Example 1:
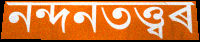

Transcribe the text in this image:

নন্দনতত্ত্বৰ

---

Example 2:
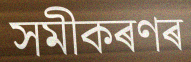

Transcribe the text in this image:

সমীকৰণৰ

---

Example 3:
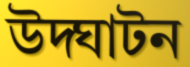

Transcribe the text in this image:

উদ্ঘাটন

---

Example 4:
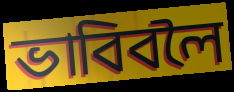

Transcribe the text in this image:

ভাবিবলৈ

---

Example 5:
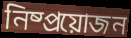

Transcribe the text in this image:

নিষ্প্ৰয়োজন